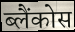
ब्लैंकोस